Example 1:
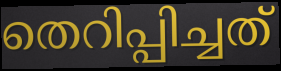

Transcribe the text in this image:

തെറിപ്പിച്ചത്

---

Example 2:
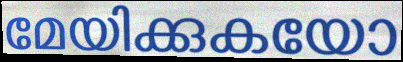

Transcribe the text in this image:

മേയിക്കുകയോ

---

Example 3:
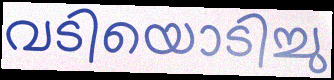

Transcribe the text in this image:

വടിയൊടിച്ചു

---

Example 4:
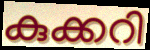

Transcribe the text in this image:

കുക്കറി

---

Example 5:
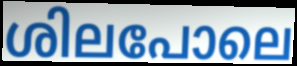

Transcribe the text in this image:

ശിലപോലെ